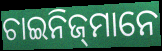
ଚାଇନିଜ୍‍ମାନେ